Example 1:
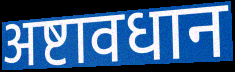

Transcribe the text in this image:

अष्टावधान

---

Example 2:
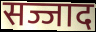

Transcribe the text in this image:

सज्जाद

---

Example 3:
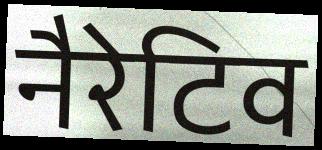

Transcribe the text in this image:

नैरेटिव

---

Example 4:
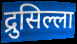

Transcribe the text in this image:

द्रुसिल्ला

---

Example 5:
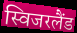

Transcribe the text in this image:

स्विजरलैंड